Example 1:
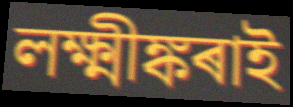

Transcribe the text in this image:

লক্ষ্মীঙ্কৰাই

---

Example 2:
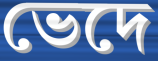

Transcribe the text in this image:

ভেদে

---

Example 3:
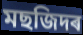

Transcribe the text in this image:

মছজিদৰ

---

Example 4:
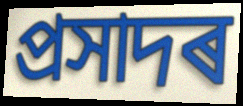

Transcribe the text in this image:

প্ৰসাদৰ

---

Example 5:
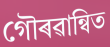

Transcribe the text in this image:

গৌৰৱান্বিত